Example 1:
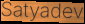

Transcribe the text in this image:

Satyadev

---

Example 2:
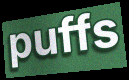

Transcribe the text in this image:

puffs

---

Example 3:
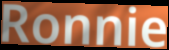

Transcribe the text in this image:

Ronnie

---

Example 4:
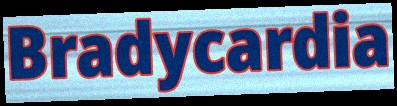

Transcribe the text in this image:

Bradycardia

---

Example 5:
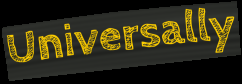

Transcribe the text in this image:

Universally